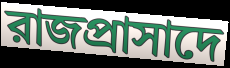
রাজপ্রাসাদে